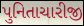
પુનિતાચારીજી